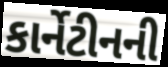
કાર્નેટીનની